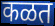
कळत